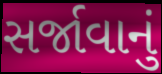
સર્જાવાનું